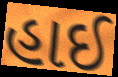
હાઈ